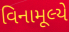
વિનામૂલ્યે